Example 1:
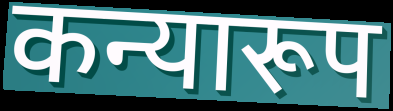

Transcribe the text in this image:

कन्यारूप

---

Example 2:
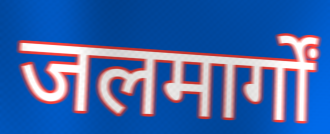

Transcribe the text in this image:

जलमार्गों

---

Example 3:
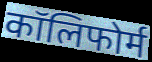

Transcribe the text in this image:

कॉलिफोर्म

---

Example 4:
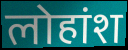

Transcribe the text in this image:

लोहांश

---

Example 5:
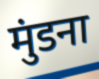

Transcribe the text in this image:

मुंडना